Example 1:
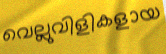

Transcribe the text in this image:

വെല്ലുവിളികളായ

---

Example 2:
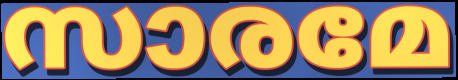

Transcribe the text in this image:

സാരമേ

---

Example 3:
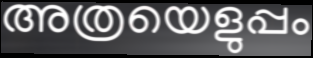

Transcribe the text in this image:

അത്രയെളുപ്പം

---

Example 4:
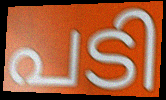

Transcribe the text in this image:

പടി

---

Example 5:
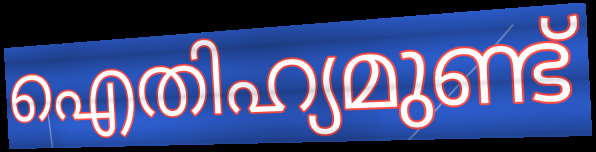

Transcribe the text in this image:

ഐതിഹ്യമുണ്ട്